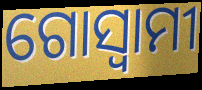
ଗୋସ୍ଵାମୀ